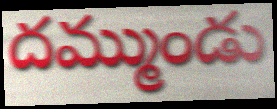
దమ్ముండు